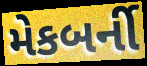
મેકબર્ની